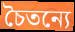
চৈতন্যে